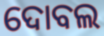
ଦୋବଲ